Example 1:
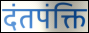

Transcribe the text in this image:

दंतपंक्ति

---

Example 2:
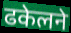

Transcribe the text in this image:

ढकेलने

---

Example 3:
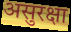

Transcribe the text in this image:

असुरक्षा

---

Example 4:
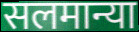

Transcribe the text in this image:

सलमान्या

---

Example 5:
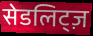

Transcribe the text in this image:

सेडलिट्ज़